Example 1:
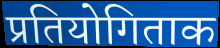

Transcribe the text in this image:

प्रतियोगिताक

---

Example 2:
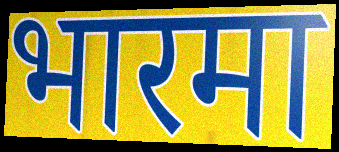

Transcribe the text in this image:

भारमा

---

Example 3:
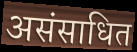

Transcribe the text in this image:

असंसाधित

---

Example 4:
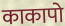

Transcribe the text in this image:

काकापो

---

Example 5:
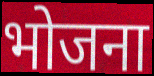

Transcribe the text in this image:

भोजना